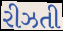
રીઝતી